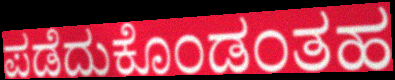
ಪಡೆದುಕೊಂಡಂತಹ